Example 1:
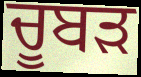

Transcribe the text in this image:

ਚੂਬੜ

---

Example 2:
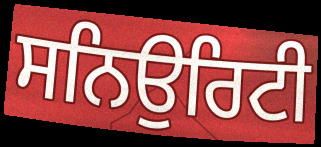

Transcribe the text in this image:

ਸਨਿਉਰਿਟੀ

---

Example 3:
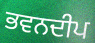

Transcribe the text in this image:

ਭਵਨਦੀਪ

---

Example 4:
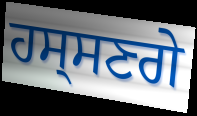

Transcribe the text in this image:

ਹਸ੍ਸਣਗੇ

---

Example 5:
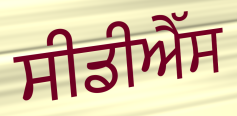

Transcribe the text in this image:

ਸੀਡੀਐੱਸ